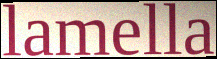
lamella